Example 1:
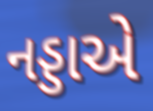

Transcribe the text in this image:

નડ્ડાએ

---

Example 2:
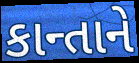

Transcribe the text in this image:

કાન્તાને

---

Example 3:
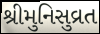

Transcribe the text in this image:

શ્રીમુનિસુવ્રત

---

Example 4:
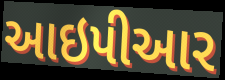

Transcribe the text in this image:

આઇપીઆર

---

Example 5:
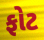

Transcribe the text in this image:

ફોટ